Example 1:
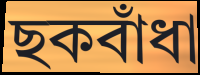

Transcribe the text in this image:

ছকবাঁধা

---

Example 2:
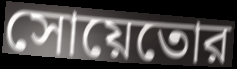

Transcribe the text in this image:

সোয়েতোর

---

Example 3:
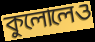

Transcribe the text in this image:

কুলোলেও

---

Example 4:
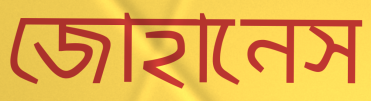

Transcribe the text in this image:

জোহানেস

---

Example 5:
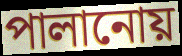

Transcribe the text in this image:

পালানোয়